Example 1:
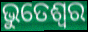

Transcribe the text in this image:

ଭୁତେଶ୍ୱର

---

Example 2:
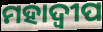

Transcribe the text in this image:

ମହାଦ୍ୱୀପ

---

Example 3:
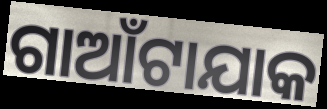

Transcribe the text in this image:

ଗାଆଁଟାଯାକ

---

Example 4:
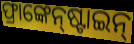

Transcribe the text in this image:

ଫ୍ରାଙ୍କେନ୍‌ଷ୍ଟାଇନ୍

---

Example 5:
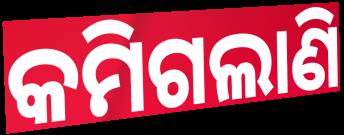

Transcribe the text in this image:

କମିଗଲାଣି